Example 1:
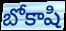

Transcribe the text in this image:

బోకాషి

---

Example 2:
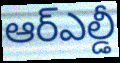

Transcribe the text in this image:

ఆర్ఎల్డీ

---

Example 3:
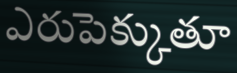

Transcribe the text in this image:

ఎరుపెక్కుతూ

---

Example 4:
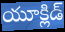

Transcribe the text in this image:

యూక్లిడ్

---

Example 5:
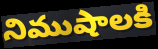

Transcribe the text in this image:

నిముషాలకి